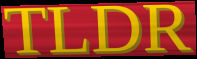
TLDR